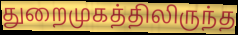
துறைமுகத்திலிருந்த